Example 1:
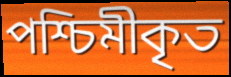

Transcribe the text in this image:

পশ্চিমীকৃত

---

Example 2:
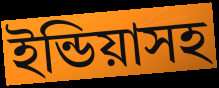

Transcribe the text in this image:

ইন্ডিয়াসহ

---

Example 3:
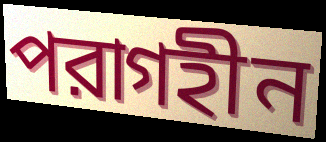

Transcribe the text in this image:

পরাগহীন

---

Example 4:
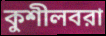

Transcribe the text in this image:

কুশীলবরা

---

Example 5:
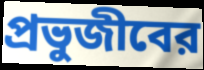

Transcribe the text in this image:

প্রভুজীবের